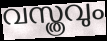
വസ്ത്രവും